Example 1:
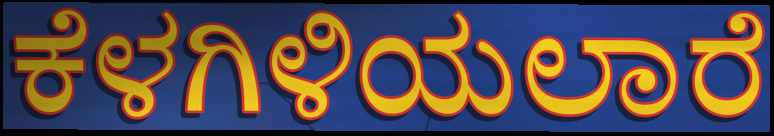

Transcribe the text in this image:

ಕೆಳಗಿಳಿಯಲಾರೆ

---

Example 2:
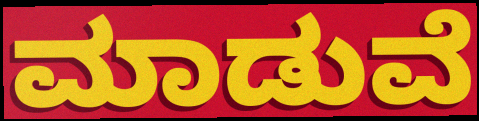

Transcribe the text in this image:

ಮಾಡುವೆ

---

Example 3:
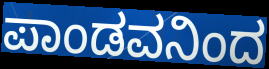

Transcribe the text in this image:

ಪಾಂಡವನಿಂದ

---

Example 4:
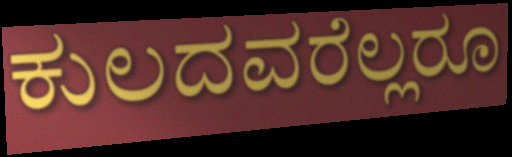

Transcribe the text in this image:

ಕುಲದವರೆಲ್ಲರೂ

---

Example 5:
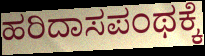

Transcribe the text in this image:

ಹರಿದಾಸಪಂಥಕ್ಕೆ